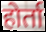
होर्ता